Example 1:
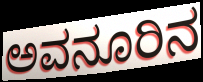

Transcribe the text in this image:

ಅವನೂರಿನ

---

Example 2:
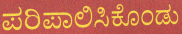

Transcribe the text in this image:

ಪರಿಪಾಲಿಸಿಕೊಂಡು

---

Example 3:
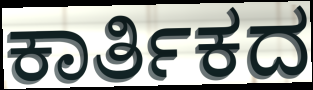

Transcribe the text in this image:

ಕಾರ್ತಿಕದ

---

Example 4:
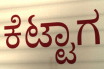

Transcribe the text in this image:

ಕೆಟ್ಟಾಗ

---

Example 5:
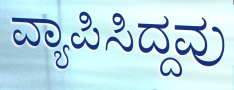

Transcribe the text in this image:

ವ್ಯಾಪಿಸಿದ್ದವು